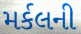
મર્કલની